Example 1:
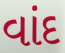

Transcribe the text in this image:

વાંદ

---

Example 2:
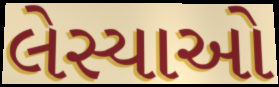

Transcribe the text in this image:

લેસ્યાઓ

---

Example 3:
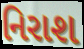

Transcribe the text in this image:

નિરાશ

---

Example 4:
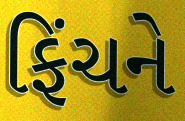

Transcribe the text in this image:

ફિંચને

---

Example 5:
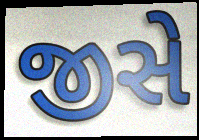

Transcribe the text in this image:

જીસે